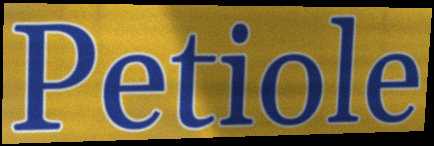
Petiole